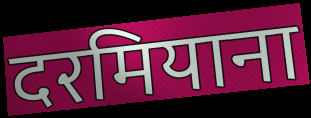
दरमियाना